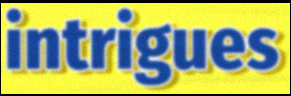
intrigues